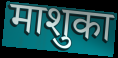
माशुका